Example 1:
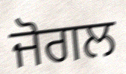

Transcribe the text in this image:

ਜੋਗਲ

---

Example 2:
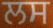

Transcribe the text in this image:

ਲਸ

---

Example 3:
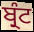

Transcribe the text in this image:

ਬ੍ਰੰਟ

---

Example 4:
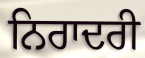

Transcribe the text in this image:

ਨਿਰਾਦਰੀ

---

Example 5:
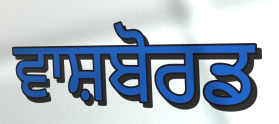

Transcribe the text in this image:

ਵਾਸ਼ਬੋਰਡ